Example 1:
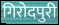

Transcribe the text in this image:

गिरोदपुरी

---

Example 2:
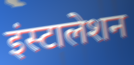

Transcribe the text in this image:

इंस्टालेशन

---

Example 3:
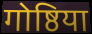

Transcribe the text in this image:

गोष्ठिया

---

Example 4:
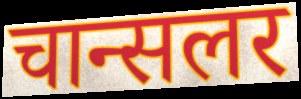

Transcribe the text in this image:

चान्सलर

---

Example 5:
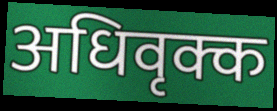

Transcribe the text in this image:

अधिवृक्क